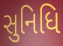
સુનિધિ